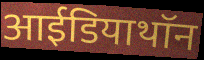
आईडियाथॉन